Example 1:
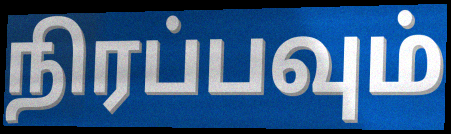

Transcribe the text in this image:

நிரப்பவும்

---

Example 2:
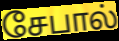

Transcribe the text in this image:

சேபால்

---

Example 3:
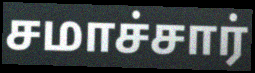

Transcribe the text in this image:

சமாச்சார்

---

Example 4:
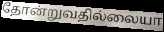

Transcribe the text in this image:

தோன்றுவதில்லையா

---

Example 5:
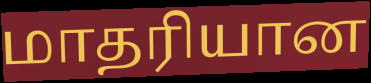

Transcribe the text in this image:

மாதரியான